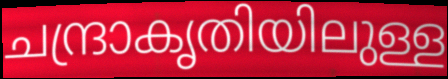
ചന്ദ്രാകൃതിയിലുള്ള